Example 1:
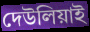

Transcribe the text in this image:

দেউলিয়াই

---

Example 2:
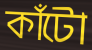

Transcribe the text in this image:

কাঁটো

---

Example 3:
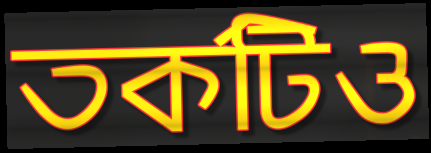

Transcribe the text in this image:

তর্কটিও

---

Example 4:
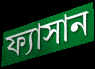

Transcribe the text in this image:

ফ্যাসান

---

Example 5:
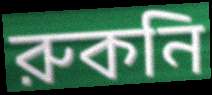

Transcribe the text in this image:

রুকনি